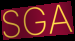
SGA